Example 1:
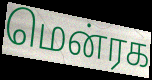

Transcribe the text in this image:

மென்ரக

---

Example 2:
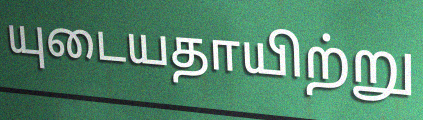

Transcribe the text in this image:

யுடையதாயிற்று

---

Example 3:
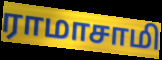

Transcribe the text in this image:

ராமாசாமி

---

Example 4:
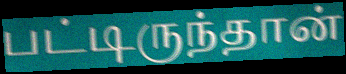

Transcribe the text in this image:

பட்டிருந்தான்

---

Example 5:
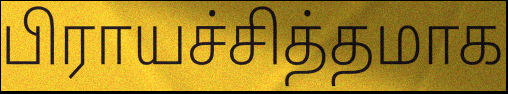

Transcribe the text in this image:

பிராயச்சித்தமாக